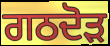
ਗਠਦੋੜ